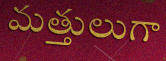
మత్తులుగా